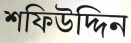
শফিউদ্দিন